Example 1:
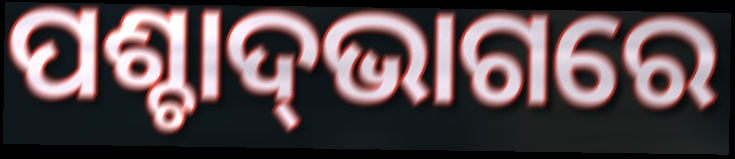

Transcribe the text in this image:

ପଶ୍ଚାଦ୍‌ଭାଗରେ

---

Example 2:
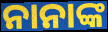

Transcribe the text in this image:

ନାନାଙ୍କ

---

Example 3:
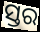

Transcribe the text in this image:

ସ୍ତର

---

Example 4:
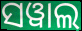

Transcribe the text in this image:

ସୱାଲ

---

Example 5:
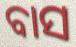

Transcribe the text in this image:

ବାସ